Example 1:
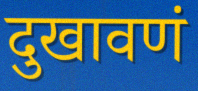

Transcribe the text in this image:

दुखावणं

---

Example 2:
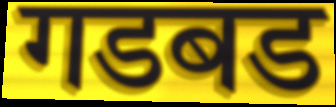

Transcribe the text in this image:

गडबड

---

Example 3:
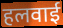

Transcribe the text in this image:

हलवाई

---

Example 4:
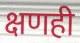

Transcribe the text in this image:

क्षणही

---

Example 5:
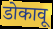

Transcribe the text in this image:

डोकावू